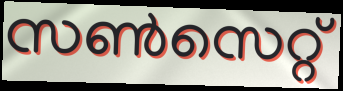
സൺസെറ്റ്